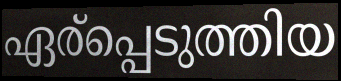
ഏര്പ്പെടുത്തിയ